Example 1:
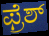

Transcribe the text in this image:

ಫ್ರೆಶ್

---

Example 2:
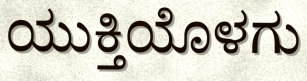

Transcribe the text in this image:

ಯುಕ್ತಿಯೊಳಗು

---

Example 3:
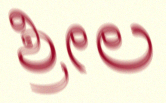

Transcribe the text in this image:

ಶ್ರೀಲ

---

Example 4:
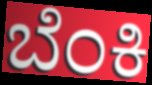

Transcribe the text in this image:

ಬೆಂಕಿ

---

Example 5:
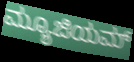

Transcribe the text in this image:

ಮ್ಯೂಜಿಯಮ್